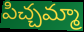
పిచ్చమ్మా